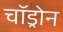
चॉड्रोन